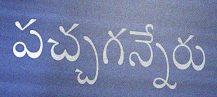
పచ్చగన్నేరు